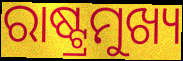
ରାଷ୍ଟ୍ରମୁଖ୍ୟ